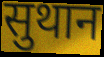
सुथान